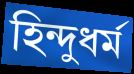
হিন্দুধর্ম